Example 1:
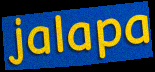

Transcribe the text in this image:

jalapa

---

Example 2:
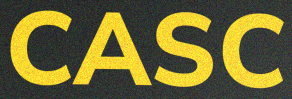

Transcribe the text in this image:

CASC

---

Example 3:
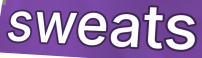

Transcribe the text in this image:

sweats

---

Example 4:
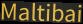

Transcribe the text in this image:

Maltibai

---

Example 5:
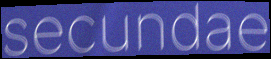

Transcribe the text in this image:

secundae